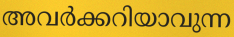
അവർക്കറിയാവുന്ന